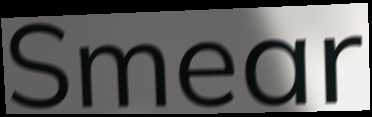
Smear